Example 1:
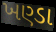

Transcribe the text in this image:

ખણ્ડા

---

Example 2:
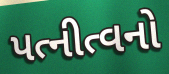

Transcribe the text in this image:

પત્નીત્વનો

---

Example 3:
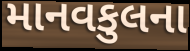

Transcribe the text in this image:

માનવકુલના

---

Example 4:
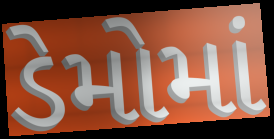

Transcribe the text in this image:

ડેમોમાં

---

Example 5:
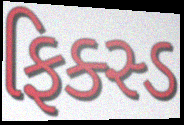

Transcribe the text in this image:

ફિક્સ્ડ